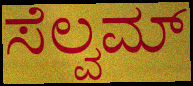
ಸೆಲ್ವಮ್